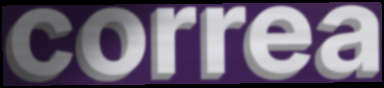
correa